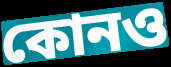
কোনও